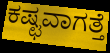
ಕಷ್ಟವಾಗತ್ತೆ